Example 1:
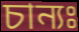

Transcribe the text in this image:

চান্যঃ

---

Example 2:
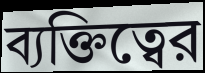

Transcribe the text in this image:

ব্যক্তিত্বের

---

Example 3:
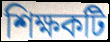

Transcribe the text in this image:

শিক্ষকটি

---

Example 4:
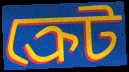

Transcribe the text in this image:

ক্রেট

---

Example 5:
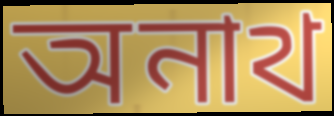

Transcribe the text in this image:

অনাথ